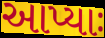
આપ્યાઃ